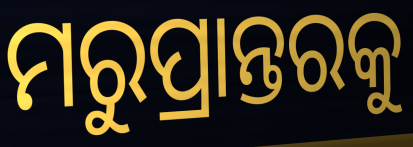
ମରୁପ୍ରାନ୍ତରକୁ